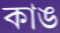
কাঙ